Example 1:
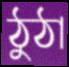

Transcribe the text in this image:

ঠুঠা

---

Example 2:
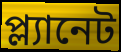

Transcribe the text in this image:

প্ল্যানেট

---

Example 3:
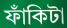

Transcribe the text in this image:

ফাঁকিটা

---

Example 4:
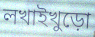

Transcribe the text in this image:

লখাইখুড়ো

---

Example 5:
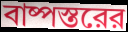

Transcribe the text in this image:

বাষ্পস্তরের